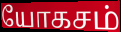
யோகசம்